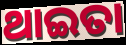
ଥାଇତା